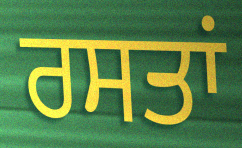
ਰਸਤਾਂ